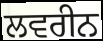
ਲਵਰੀਨ